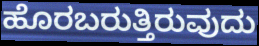
ಹೊರಬರುತ್ತಿರುವುದು